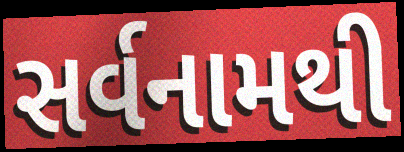
સર્વનામથી